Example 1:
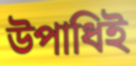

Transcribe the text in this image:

উপাধিই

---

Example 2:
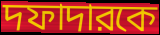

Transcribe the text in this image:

দফাদারকে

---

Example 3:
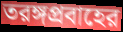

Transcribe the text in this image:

তরঙ্গপ্রবাহের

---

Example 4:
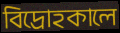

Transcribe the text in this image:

বিদ্রোহকালে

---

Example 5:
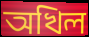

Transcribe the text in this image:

অখিল